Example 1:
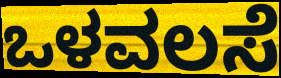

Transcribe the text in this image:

ಒಳವಲಸೆ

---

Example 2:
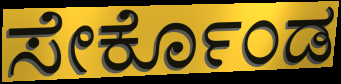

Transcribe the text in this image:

ಸೇರ್ಕೊಂಡ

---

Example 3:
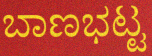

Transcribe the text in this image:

ಬಾಣಭಟ್ಟ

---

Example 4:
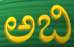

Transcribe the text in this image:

ಅಬಿ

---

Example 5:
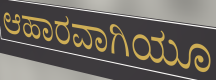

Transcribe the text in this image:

ಆಹಾರವಾಗಿಯೂ